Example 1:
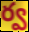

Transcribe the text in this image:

ర్వ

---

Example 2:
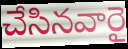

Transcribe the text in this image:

చేసినవారై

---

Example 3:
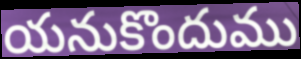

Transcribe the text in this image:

యనుకొందుము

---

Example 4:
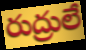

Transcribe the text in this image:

రుద్రులే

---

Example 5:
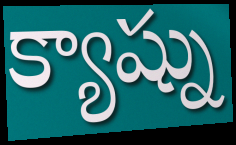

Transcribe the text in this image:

క్యాష్ను